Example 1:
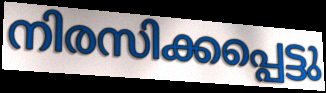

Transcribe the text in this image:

നിരസിക്കപ്പെട്ടു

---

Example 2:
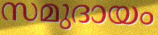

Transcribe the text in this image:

സമുദായം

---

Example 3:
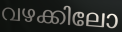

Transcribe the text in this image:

വഴക്കിലോ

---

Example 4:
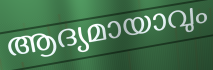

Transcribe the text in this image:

ആദ്യമായാവും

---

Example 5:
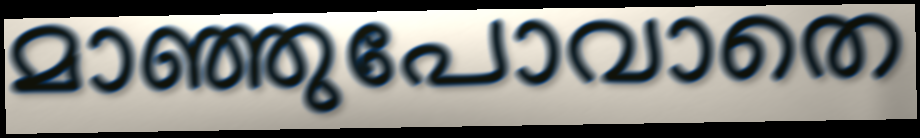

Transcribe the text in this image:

മാഞ്ഞുപോവാതെ